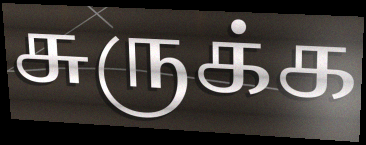
சுருக்க